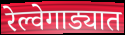
रेल्वेगाड्यात